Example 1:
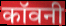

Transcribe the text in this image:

कॉवनी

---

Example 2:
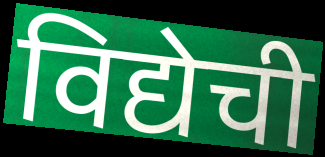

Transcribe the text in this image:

विद्येची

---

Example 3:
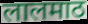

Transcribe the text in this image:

लालमाठ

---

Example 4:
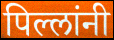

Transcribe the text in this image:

पिल्लांनी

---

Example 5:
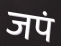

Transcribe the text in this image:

जपं